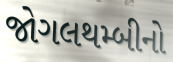
જોગલથમ્બીનો